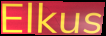
Elkus